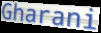
Gharani